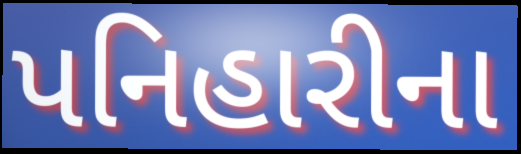
પનિહારીના